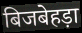
बिजबेहड़ा